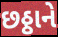
છઠ્ઠાને